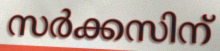
സർക്കസിന്